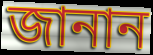
জানান